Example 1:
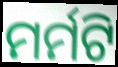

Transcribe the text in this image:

ମର୍ମଟି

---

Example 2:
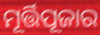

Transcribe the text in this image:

ମୂର୍ତ୍ତିପୂଜାର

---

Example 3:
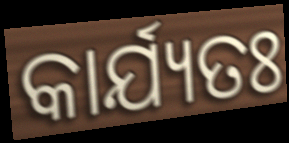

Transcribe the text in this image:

କାର୍ଯ୍ୟତଃ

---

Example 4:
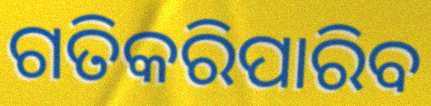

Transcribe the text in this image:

ଗତିକରିପାରିବ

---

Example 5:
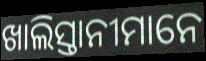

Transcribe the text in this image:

ଖାଲିସ୍ତାନୀମାନେ